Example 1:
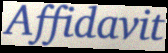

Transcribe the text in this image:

Affidavit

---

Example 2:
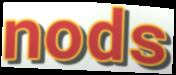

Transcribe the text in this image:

nods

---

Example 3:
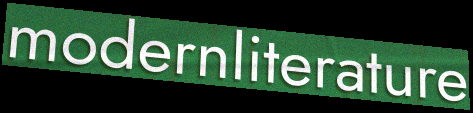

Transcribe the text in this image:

modernliterature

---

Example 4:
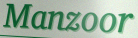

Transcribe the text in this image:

Manzoor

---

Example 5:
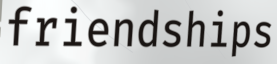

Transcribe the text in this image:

friendships